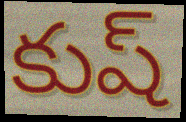
కుష్